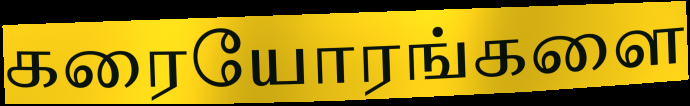
கரையோரங்களை